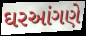
ઘરઆંગણે